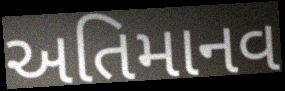
અતિમાનવ